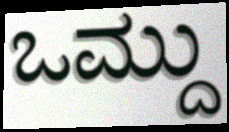
ಒಮ್ದು